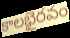
కాలభైరవం